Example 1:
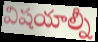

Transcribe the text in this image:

విషయాల్నీ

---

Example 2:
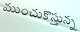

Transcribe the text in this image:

ముంచుకొస్తున్న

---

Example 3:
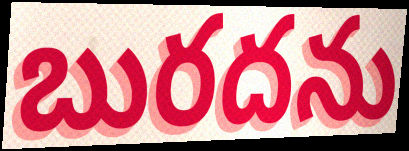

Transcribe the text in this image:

బురదను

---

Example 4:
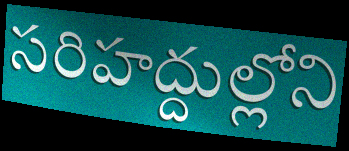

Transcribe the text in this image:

సరిహద్దుల్లోని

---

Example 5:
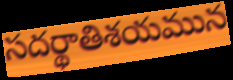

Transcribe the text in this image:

సదర్థాతిశయమున